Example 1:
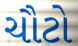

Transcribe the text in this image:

ચૌટો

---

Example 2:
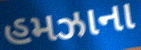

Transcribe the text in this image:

હમઝાના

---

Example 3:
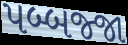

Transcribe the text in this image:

પબ્બજ્જા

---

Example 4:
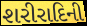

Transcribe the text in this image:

શરીરાદિની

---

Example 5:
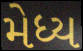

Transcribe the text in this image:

મેધ્ય